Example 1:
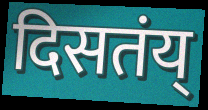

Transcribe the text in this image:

दिसतंय्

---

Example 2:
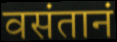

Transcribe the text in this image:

वसंतानं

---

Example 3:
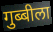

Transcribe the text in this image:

गुब्बीला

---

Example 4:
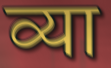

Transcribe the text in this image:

व्या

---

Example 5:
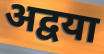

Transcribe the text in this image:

अद्वया